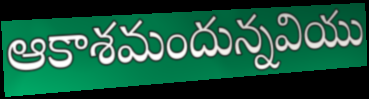
ఆకాశమందున్నవియు